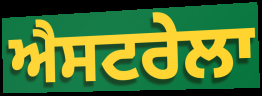
ਐਸਟਰੇਲਾ